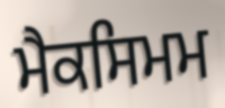
ਮੈਕਸਿਮਮ